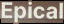
Epical